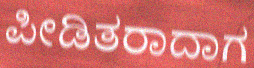
ಪೀಡಿತರಾದಾಗ